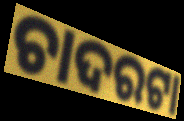
ଚାଦରଟା